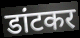
डांटकर